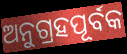
ଅନୁଗ୍ରହପୂର୍ବକ